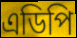
এডিপি